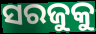
ସରଜୁକୁ